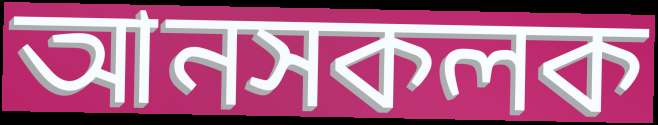
আনসকলক